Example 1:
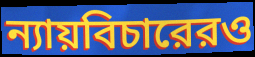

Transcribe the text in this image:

ন্যায়বিচারেরও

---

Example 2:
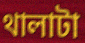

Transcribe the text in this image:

থালাটা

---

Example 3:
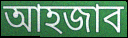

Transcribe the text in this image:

আহজাব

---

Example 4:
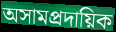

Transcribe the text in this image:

অসামপ্রদায়িক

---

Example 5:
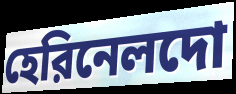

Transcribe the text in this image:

হেরিনেলদো